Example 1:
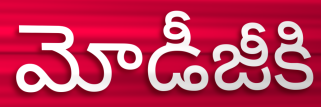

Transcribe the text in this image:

మోడీజీకి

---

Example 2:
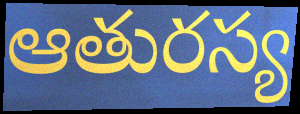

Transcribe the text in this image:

ఆతురస్య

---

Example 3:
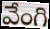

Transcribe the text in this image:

వేంగి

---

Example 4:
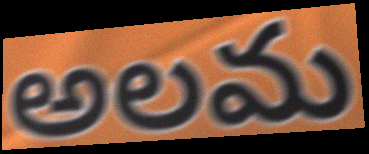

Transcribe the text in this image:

అలమ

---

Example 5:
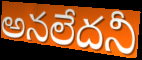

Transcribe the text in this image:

అనలేదనీ